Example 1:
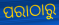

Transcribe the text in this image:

ପରାଠାରୁ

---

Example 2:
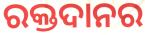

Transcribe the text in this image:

ରକ୍ତଦାନର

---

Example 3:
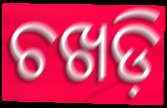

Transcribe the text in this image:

ଚଖଡ଼ି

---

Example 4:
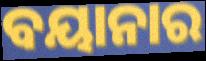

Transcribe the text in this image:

ବୟାନାର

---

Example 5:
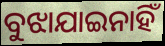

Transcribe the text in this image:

ବୁଝାଯାଇନାହିଁ